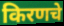
किरणचे